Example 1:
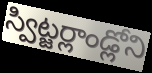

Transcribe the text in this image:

స్విట్జర్లాండ్లోని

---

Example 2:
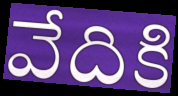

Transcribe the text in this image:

వేదికి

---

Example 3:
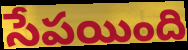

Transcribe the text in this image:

సేపయింది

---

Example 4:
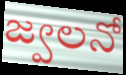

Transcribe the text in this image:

జ్వలనో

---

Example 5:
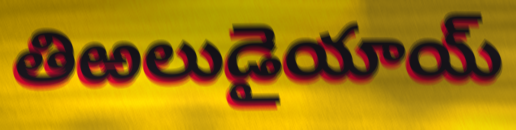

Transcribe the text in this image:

తిఱలుడైయాయ్